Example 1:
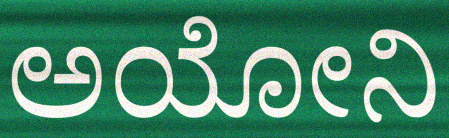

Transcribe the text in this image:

ಅಯೋನಿ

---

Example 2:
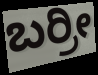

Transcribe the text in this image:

ಬರ್ರೀ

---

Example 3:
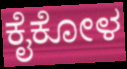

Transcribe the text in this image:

ಕೈಕೋಳ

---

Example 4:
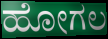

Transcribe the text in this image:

ಹೋಗಲ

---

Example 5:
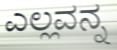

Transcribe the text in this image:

ಎಲ್ಲವನ್ನ